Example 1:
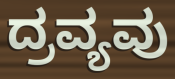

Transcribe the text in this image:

ದ್ರವ್ಯವು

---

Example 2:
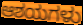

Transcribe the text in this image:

ಆಶಯಗಳು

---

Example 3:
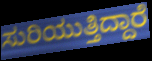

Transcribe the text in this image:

ಸುರಿಯುತ್ತಿದ್ದಾರೆ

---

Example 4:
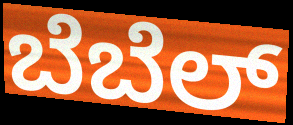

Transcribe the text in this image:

ಬೆಬೆಲ್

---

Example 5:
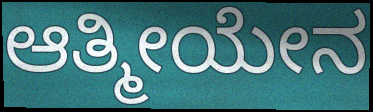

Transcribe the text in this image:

ಆತ್ಮೀಯೇನ